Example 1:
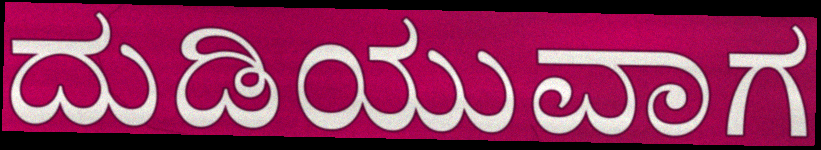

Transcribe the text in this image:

ದುಡಿಯುವಾಗ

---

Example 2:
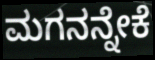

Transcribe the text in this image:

ಮಗನನ್ನೇಕೆ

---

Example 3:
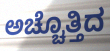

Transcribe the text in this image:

ಅಚ್ಚೊತ್ತಿದ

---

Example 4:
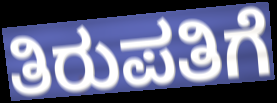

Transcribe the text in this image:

ತಿರುಪತಿಗೆ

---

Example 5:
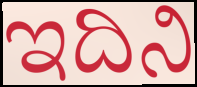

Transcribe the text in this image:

ಇದಿನಿ